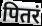
पितरं